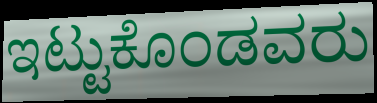
ಇಟ್ಟುಕೊಂಡವರು